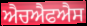
ਐਚਐਫਐਸ